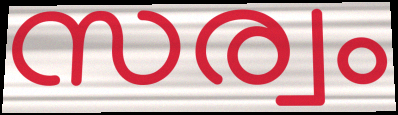
സര്വം